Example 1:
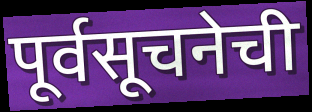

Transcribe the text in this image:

पूर्वसूचनेची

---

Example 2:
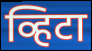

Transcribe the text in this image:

व्हिटा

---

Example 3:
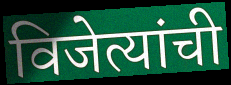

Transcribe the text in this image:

विजेत्यांची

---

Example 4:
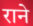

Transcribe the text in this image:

राने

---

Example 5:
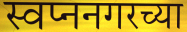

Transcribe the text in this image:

स्वप्ननगरच्या